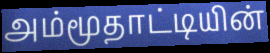
அம்மூதாட்டியின்